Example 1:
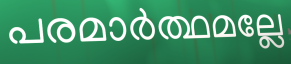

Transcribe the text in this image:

പരമാർത്ഥമല്ലേ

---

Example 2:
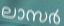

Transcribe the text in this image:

ലാസർ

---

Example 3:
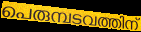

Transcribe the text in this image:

പെരുമ്പടവത്തിന്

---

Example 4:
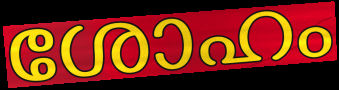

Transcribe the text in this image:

ശോഹം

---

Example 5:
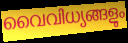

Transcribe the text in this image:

വൈവിധ്യങ്ങളും